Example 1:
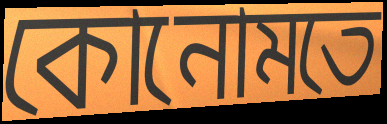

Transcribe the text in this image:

কোনোমতে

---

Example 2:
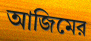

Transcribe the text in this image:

আজিমের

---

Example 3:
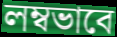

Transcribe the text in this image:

লম্বভাবে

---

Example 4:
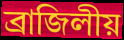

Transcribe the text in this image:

ব্রাজিলীয়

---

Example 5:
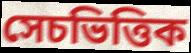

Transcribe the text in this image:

সেচভিত্তিক